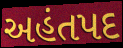
અહંતપદ